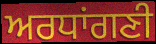
ਅਰਧਾਂਗਣੀ